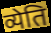
व्येति